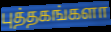
புத்தகங்களா